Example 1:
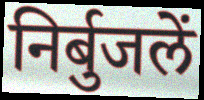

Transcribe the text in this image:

निर्बुजलें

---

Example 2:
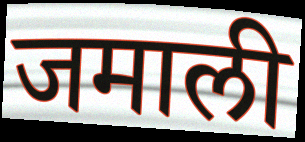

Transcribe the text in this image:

जमाली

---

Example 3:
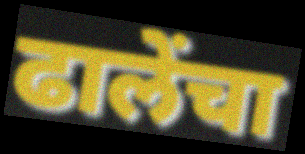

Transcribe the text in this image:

ढालेंचा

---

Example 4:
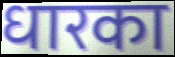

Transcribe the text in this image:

धारका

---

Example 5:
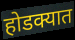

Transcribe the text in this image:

होडक्यात